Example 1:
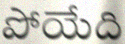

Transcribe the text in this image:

పోయేది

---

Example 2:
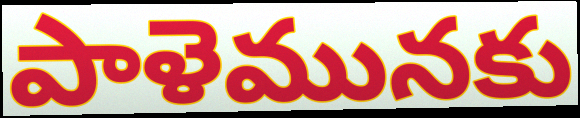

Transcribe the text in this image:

పాళెమునకు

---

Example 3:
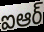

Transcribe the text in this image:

ఐఆర్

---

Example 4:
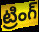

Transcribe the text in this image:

ట్రింగ్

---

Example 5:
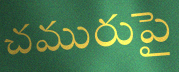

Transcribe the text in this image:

చమురుపై